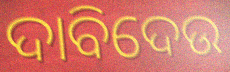
ଦାବିଦେଉ